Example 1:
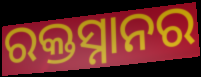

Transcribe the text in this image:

ରକ୍ତସ୍ନାନର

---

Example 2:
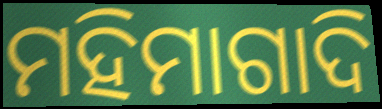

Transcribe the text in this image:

ମହିମାଗାଦି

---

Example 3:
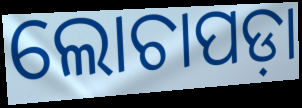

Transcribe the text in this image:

ଲୋଚାପଡ଼ା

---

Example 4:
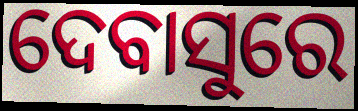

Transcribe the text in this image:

ଦେବାସୁରେ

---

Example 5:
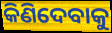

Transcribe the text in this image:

କିଣିଦେବାକୁ